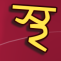
স্থ